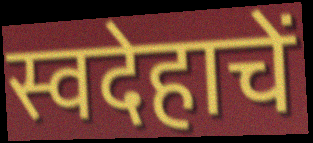
स्वदेहाचें